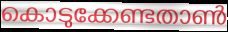
കൊടുക്കേണ്ടതാൺ